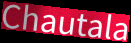
Chautala